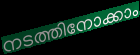
നടത്തിനോക്കാം